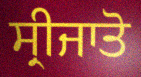
ਸ੍ਰੀਜਾਤੋ